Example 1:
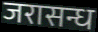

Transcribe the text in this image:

जरासन्ध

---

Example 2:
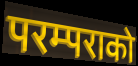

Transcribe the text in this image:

परम्पराको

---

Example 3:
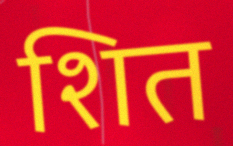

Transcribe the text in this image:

शित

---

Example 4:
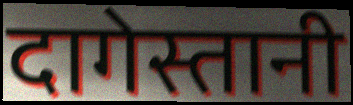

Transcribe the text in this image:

दागेस्तानी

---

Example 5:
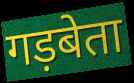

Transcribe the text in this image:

गड़बेता